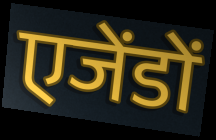
एजेंडों